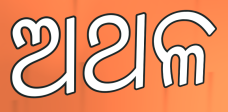
ଅଥଳ